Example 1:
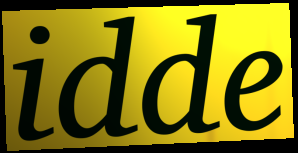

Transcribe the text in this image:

idde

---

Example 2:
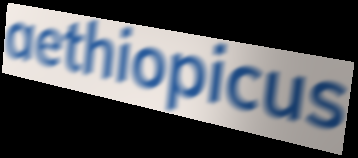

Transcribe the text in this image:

aethiopicus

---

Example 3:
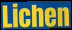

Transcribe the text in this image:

Lichen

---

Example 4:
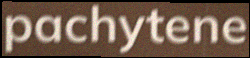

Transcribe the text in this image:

pachytene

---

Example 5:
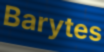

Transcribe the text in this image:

Barytes